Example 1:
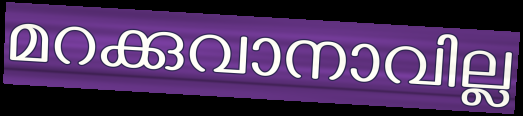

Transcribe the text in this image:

മറക്കുവാനാവില്ല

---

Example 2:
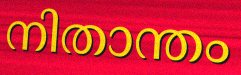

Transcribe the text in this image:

നിതാന്തം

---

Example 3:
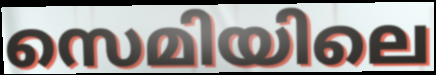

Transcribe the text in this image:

സെമിയിലെ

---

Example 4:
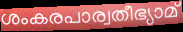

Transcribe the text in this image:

ശംകരപാര്വതീഭ്യാമ്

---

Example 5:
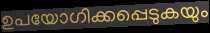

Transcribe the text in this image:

ഉപയോഗിക്കപ്പെടുകയും